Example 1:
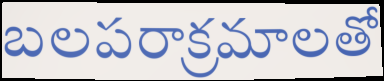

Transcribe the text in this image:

బలపరాక్రమాలతో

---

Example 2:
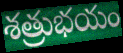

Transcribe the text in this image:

శత్రుభయం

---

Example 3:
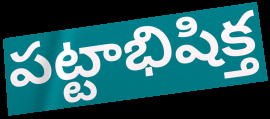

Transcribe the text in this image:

పట్టాభిషిక్త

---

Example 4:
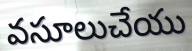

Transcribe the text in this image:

వసూలుచేయు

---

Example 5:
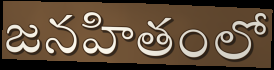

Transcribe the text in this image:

జనహితంలో